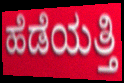
ಹೆಡೆಯತ್ತಿ